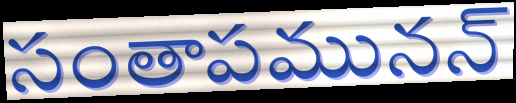
సంతాపమునన్